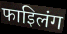
फाइिलंग